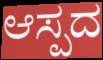
ಆಸ್ಪದ